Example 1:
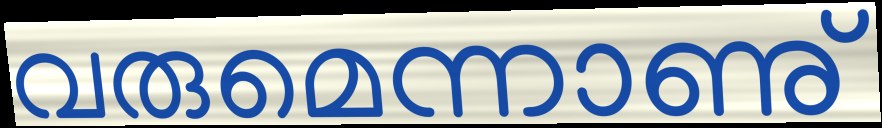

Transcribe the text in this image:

വരുമെന്നാണു്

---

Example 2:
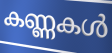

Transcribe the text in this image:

കണ്ണകൾ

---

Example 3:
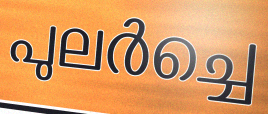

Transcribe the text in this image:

പുലർച്ചെ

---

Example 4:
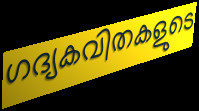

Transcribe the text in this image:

ഗദ്യകവിതകളുടെ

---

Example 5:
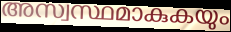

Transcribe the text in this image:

അസ്വസ്ഥമാകുകയും